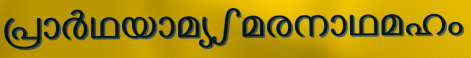
പ്രാർഥയാമ്യഽമരനാഥമഹം